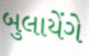
બુલાયેંગે